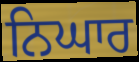
ਨਿਘਾਰ